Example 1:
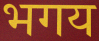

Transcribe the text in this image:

भगय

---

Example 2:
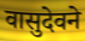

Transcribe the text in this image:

वासुदेवने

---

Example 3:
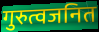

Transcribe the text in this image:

गुरुत्वजनित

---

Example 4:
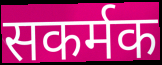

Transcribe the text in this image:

सकर्मक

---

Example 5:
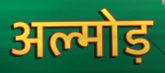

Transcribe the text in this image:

अल्मोड़